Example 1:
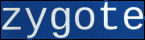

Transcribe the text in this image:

zygote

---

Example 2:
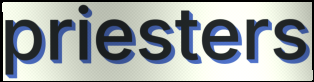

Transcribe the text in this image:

priesters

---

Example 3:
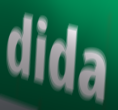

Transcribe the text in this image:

dida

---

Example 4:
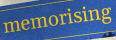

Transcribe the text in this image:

memorising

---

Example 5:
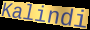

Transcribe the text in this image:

Kalindi